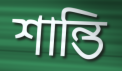
শান্তি